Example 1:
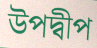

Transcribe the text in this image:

উপদ্বীপ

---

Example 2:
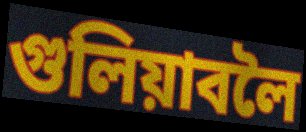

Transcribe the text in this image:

গুলিয়াবলৈ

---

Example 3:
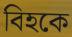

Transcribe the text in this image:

বিহকে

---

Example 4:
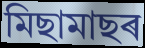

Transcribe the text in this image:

মিছামাছৰ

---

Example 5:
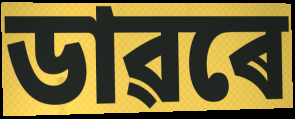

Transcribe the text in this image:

ডাৱৰে